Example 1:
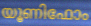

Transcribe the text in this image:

യൂണിഫോം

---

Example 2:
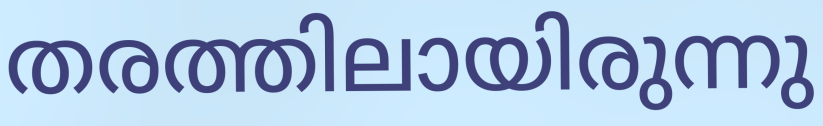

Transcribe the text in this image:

തരത്തിലായിരുന്നു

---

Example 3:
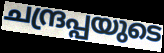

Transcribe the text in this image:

ചന്ദ്രപ്പയുടെ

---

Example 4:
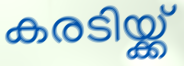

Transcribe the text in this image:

കരടിയ്ക്ക്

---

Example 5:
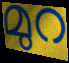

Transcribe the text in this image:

മുറ